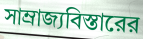
সাম্রাজ্যবিস্তারের